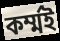
কর্ম্মই